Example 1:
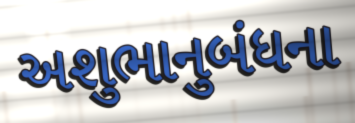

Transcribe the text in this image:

અશુભાનુબંધના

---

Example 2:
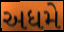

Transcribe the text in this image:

અધમે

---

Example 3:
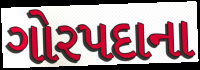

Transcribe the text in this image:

ગોરપદાના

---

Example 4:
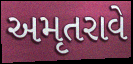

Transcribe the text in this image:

અમૃતરાવે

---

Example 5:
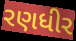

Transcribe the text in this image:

રણધીર